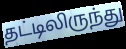
தட்டிலிருந்து